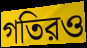
গতিরও